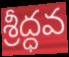
శ్రీద్ధవ